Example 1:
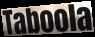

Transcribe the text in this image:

Taboola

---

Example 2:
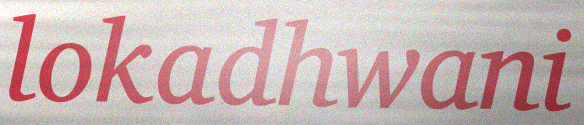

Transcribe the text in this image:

lokadhwani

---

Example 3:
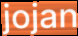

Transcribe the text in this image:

jojan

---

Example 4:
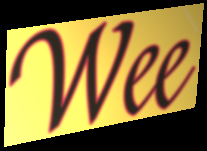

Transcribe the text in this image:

Wee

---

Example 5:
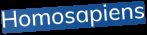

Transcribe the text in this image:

Homosapiens